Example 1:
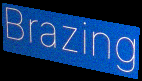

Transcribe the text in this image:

Brazing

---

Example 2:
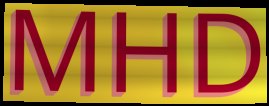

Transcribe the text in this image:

MHD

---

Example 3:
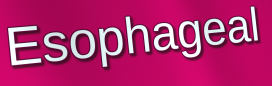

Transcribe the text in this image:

Esophageal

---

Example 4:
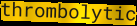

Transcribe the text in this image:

thrombolytic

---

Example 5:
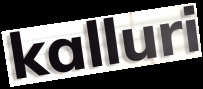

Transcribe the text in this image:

kalluri